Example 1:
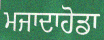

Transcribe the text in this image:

ਮਜਾਦਾਹੋਡਾ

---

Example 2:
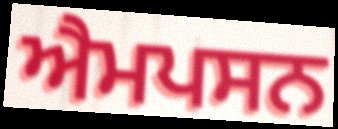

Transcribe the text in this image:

ਐਮਪਸਨ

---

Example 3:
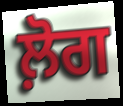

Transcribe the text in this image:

ਲ਼ੋਗ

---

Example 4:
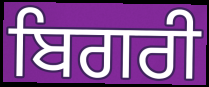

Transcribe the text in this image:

ਬਿਗਰੀ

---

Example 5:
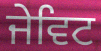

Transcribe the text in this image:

ਜੇਵਿਟ